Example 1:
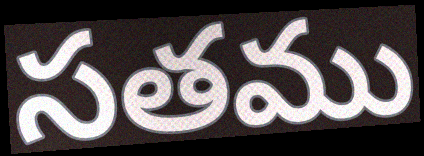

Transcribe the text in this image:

సతము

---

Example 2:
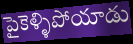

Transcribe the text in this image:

పైకెళ్ళిపోయాడు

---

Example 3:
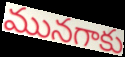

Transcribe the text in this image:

మునగాకు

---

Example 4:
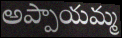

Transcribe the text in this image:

అప్పాయమ్మ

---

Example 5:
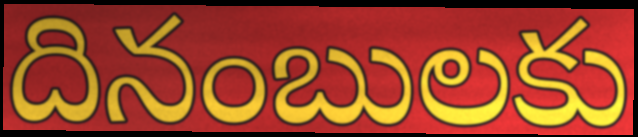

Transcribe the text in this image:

దినంబులకు